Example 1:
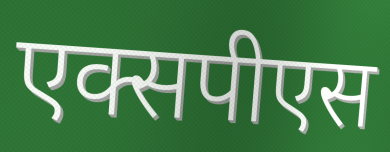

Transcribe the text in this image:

एक्सपीएस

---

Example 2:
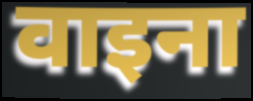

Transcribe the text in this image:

वाइना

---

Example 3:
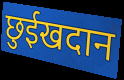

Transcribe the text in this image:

छुईखदान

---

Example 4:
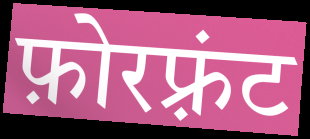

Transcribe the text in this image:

फ़ोरफ़्रंट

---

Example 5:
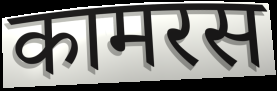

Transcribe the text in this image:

कामरस